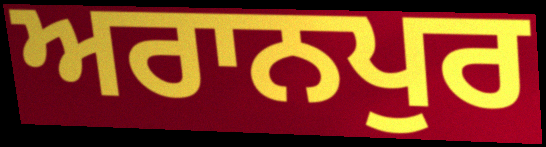
ਅਰਾਨਪੁਰ